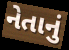
નેતાનું